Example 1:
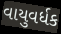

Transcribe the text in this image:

વાયુવર્ધક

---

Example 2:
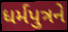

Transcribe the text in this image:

ધર્મપુત્રને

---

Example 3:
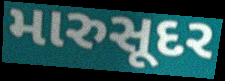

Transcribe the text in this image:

મારુસૂદર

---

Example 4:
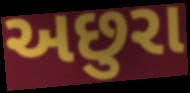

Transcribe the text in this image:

અછુરા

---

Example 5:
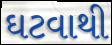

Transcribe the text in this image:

ઘટવાથી